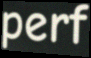
perf